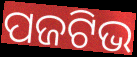
ପଜଟିଭ